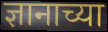
ज्ञानाच्या